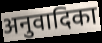
अनुवादिका